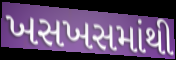
ખસખસમાંથી